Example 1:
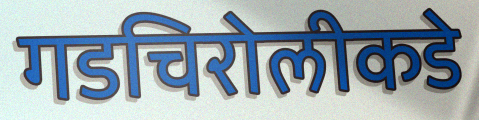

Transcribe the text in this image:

गडचिरोलीकडे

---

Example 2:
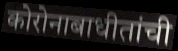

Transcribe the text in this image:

कोरोनाबाधीतांची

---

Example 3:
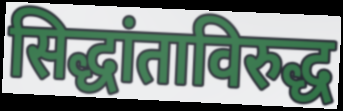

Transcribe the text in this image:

सिद्धांताविरुद्ध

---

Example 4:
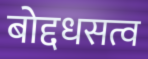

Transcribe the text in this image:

बोद्दधसत्व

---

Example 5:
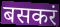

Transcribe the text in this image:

बसकरं